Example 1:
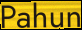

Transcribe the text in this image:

Pahun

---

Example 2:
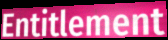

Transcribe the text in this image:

Entitlement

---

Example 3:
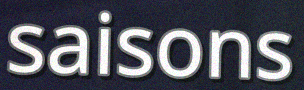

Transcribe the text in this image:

saisons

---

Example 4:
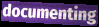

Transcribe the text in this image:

documenting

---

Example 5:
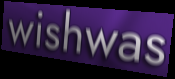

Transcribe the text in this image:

wishwas